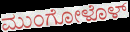
ಮುಂಗೋಳೊಳ್